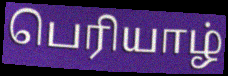
பெரியாழ்